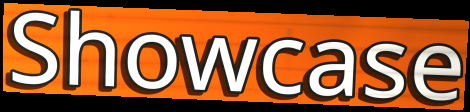
Showcase